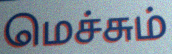
மெச்சும்